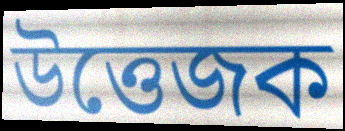
উত্তেজক